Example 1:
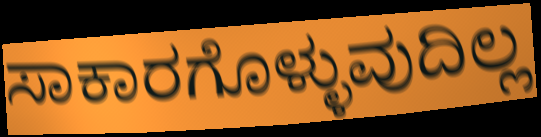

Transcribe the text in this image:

ಸಾಕಾರಗೊಳ್ಳುವುದಿಲ್ಲ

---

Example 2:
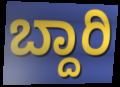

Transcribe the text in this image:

ಬ್ದಾರಿ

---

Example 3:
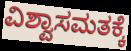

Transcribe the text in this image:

ವಿಶ್ವಾಸಮತಕ್ಕೆ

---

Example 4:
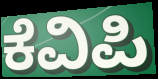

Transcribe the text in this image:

ಕೆವಿಪಿ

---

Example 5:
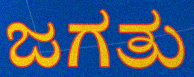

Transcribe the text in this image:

ಜಗತು